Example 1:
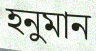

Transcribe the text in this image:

হনুমান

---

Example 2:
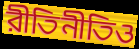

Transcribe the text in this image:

রীতিনীতিও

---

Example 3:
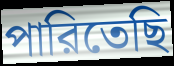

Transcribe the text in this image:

পারিতেছি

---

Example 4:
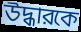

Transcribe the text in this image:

উদ্ধারকে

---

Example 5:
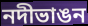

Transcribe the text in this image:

নদীভাঙন